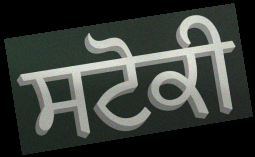
ਸਟੋਕੀ